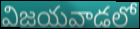
విజయవాడలో